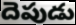
దెపుడు